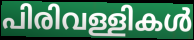
പിരിവള്ളികൾ